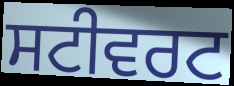
ਸਟੀਵਰਟ